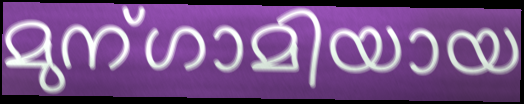
മുന്ഗാമിയായ